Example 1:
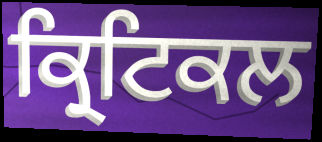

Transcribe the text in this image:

ਕ੍ਰਿਟਿਕਲ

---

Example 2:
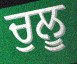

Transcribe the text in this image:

ਚੁਲੂ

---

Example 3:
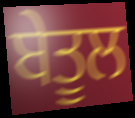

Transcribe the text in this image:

ਬੇਤੂਲ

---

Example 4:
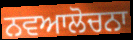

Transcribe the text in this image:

ਨਵਆਲੋਚਨਾ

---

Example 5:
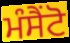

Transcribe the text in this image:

ਮੰਸੈਂਟੋ